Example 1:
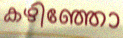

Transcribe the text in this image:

കഴിഞ്ഞോ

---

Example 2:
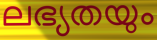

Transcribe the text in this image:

ലഭ്യതയും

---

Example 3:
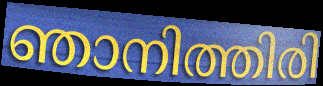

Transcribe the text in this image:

ഞാനിത്തിരി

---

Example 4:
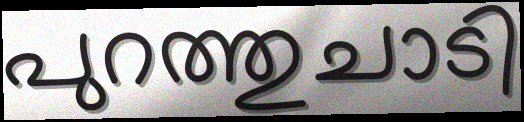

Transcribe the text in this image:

പുറത്തുചാടി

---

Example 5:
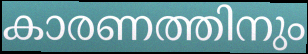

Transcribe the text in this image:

കാരണത്തിനും